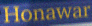
Honawar